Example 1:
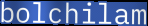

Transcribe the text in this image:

bolchilam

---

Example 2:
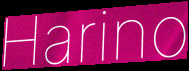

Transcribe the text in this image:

Harino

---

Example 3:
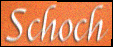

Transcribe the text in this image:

Schoch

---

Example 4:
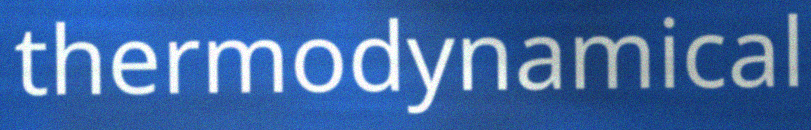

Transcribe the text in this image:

thermodynamical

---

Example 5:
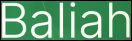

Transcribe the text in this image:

Baliah